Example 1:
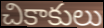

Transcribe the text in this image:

చికాకులు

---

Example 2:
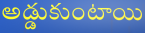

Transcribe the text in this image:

అడ్డుకుంటాయి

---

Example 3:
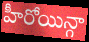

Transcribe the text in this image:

హీరోయిన్గా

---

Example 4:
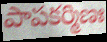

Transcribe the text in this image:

పాపకర్మిణః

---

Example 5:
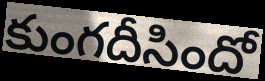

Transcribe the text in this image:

కుంగదీసిందో